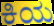
ಕಿಯ